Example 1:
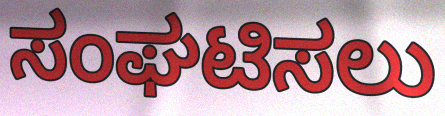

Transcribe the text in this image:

ಸಂಘಟಿಸಲು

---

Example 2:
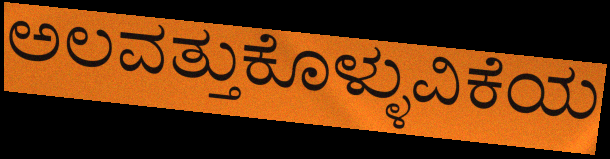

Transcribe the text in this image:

ಅಲವತ್ತುಕೊಳ್ಳುವಿಕೆಯ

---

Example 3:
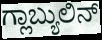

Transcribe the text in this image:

ಗ್ಲಾಬ್ಯುಲಿನ್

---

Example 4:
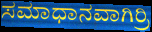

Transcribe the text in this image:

ಸಮಾಧಾನವಾಗಿರ್ರಿ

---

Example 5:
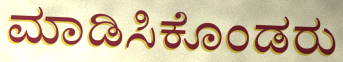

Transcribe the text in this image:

ಮಾಡಿಸಿಕೊಂಡರು